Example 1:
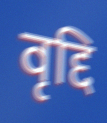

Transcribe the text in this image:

वृद्दि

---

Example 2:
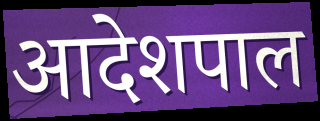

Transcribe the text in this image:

आदेशपाल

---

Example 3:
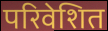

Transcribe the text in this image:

परिवेशित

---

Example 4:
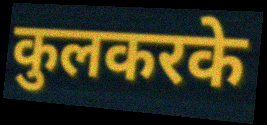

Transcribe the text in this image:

कुलकरके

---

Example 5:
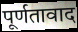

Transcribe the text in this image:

पूर्णतावाद